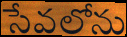
సేవలోను